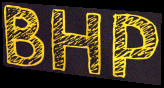
BHP